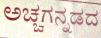
ಅಚ್ಚಗನ್ನಡದ